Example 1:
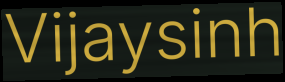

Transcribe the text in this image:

Vijaysinh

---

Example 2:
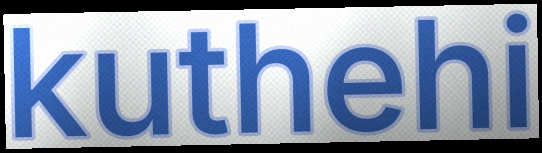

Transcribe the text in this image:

kuthehi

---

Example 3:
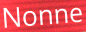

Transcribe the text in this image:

Nonne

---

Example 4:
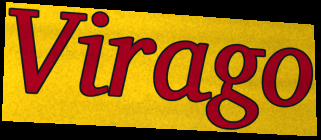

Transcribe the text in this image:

Virago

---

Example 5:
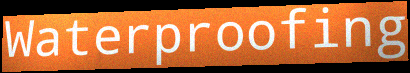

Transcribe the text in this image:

Waterproofing